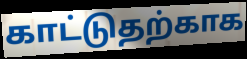
காட்டுதற்காக